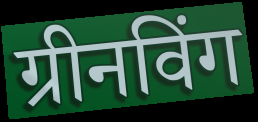
ग्रीनविंग